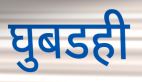
घुबडही